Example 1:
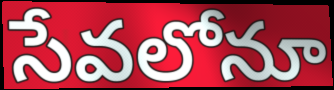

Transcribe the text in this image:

సేవలోనూ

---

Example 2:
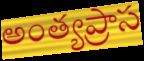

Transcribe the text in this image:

అంత్యప్రాస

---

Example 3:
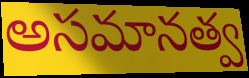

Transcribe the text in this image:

అసమానత్వ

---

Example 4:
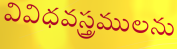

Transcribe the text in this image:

వివిధవస్త్రములను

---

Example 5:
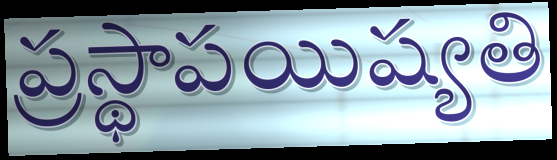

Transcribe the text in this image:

ప్రస్థాపయిష్యతి